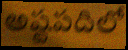
అష్టపదిలో